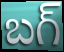
బగ్